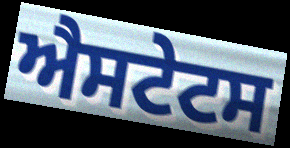
ਐਸਟੇਟਸ